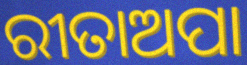
ରୀତାଅପା